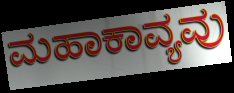
ಮಹಾಕಾವ್ಯವು